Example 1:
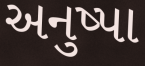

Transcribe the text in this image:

અનુષ્પા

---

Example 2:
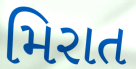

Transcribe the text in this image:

મિરાત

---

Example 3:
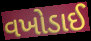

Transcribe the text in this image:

વખોડાઈ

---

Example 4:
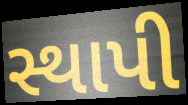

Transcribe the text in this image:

સ્થાપી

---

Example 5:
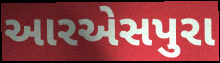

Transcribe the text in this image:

આરએસપુરા